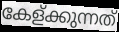
കേള്ക്കുന്നത്